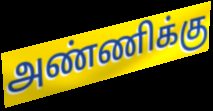
அண்ணிக்கு